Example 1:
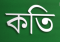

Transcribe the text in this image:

কতি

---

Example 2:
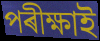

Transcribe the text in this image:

পৰীক্ষাই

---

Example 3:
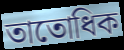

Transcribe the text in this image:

তাতোধিক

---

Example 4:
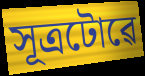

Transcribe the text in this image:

সূত্ৰটোৱে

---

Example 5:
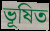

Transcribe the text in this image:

ভূষিত